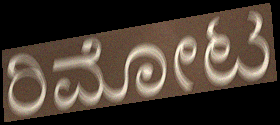
ರಿಮೋಟ